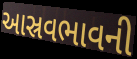
આસ્રવભાવની